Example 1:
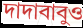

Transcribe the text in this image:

দাদাবাবুও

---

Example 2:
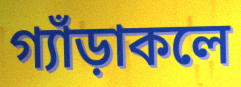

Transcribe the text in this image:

গ্যাঁড়াকলে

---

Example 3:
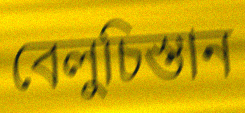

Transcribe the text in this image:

বেলুচিস্তান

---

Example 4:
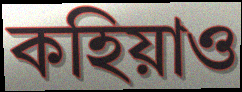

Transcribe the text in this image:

কহিয়াও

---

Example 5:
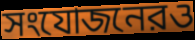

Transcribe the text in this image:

সংযোজনেরও